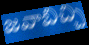
జవాబిచ్చి